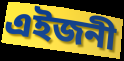
এইজনী